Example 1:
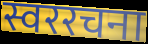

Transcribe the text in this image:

स्वररचना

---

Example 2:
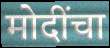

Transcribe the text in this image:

मोदींचा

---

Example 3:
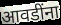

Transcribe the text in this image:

आवडींना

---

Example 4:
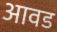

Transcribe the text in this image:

आवड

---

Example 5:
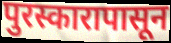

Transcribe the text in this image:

पुरस्कारापासून